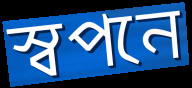
স্বপনে